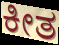
ಕೀತ